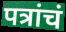
पत्रांचं